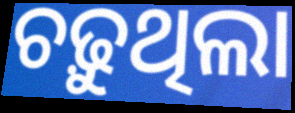
ଚଢ଼ୁଥିଲା